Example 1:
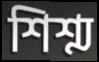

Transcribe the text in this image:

শিশ্ম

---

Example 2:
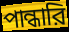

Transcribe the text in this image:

পান্ধারি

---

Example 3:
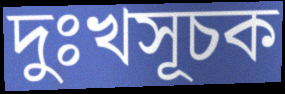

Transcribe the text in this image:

দুঃখসূচক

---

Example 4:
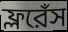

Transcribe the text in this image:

ফ্লরেঁস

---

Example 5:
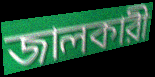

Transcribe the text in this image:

জালকারী